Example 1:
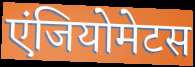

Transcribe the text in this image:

एंजियोमेटस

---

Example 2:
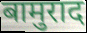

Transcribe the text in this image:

बामुराद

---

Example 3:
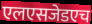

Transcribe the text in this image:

एलएसजेडएच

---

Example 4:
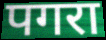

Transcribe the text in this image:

पगरा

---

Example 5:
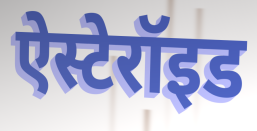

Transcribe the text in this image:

ऐस्टेरॉइड